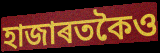
হাজাৰতকৈও